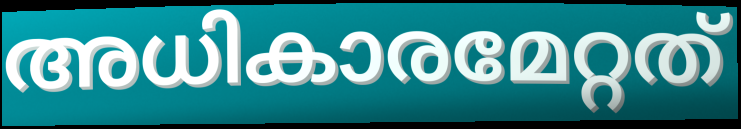
അധികാരമേറ്റത്